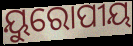
ୟୁରୋପୀୟ